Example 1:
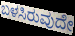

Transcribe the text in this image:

ಬಳಸಿರುವುದೇ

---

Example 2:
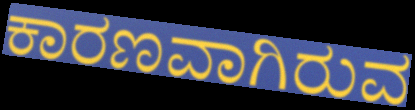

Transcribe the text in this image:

ಕಾರಣವಾಗಿರುವ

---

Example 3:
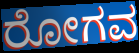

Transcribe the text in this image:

ರೋಗವ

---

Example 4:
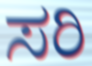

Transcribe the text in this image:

ಸರಿ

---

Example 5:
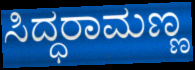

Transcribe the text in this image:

ಸಿದ್ಧರಾಮಣ್ಣ